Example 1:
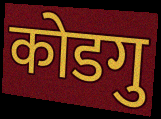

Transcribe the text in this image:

कोडगु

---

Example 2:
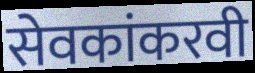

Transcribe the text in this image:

सेवकांकरवी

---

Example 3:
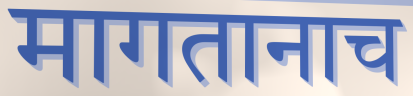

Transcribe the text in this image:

मागतानाच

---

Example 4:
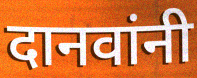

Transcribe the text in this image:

दानवांनी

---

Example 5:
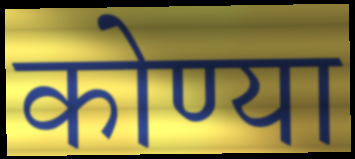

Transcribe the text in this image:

कोण्या